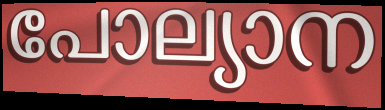
പോല്യാന